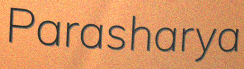
Parasharya